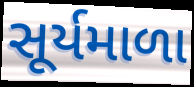
સૂર્યમાળા